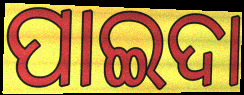
ପାଇଦା